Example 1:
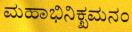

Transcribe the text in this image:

ಮಹಾಭಿನಿಕ್ಖಮನಂ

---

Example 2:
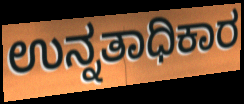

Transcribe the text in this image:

ಉನ್ನತಾಧಿಕಾರ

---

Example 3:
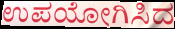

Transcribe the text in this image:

ಉಪಯೋಗಿಸಿದ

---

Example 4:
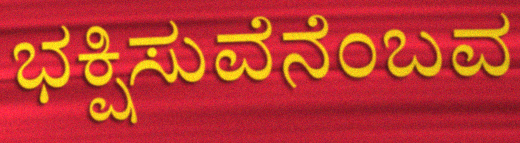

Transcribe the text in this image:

ಭಕ್ಷಿಸುವೆನೆಂಬವ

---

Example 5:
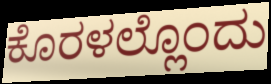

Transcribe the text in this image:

ಕೊರಳಲ್ಲೊಂದು